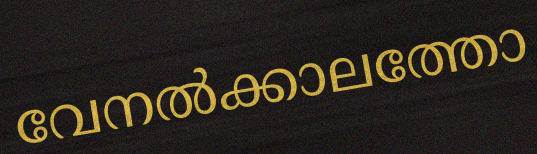
വേനൽക്കാലത്തോ